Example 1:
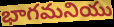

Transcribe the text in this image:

భాగమనియు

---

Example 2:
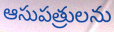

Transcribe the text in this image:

ఆసుపత్రులను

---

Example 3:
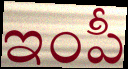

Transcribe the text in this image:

ఇంపీ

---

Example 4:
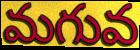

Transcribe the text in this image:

మగువ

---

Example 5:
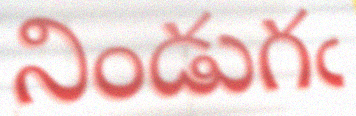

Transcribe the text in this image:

నిండుగఁ